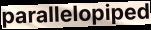
parallelopiped